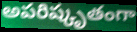
అపరిష్కృతంగా